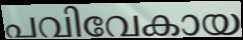
പവിവേകായ